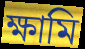
ক্ষামি